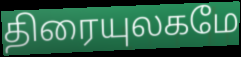
திரையுலகமே